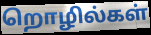
றொழில்கள்